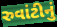
રુવાંટીનું